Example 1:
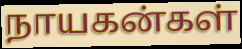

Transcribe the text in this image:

நாயகன்கள்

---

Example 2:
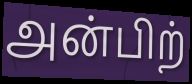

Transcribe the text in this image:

அன்பிற்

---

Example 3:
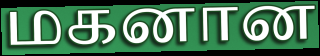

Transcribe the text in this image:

மகனான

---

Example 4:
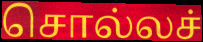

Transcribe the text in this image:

சொல்லச்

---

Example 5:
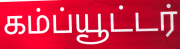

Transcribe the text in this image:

கம்ப்யூட்டர்